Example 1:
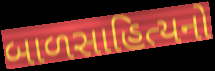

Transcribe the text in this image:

બાળસાહિત્યનો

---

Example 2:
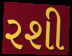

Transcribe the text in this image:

રશી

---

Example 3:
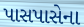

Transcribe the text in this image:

પાસપાસેના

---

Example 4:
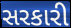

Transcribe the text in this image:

સરકારી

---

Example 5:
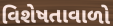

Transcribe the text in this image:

વિશેષતાવાળો